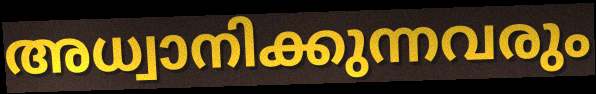
അധ്വാനിക്കുന്നവരും